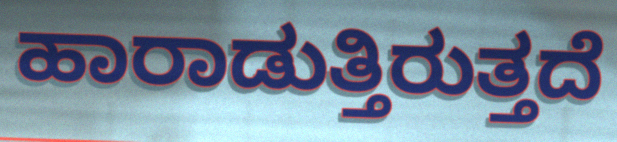
ಹಾರಾಡುತ್ತಿರುತ್ತದೆ